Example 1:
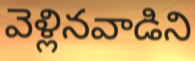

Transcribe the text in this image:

వెళ్లినవాడిని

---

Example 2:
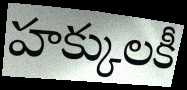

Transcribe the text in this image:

హక్కులకీ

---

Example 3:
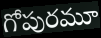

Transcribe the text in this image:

గోపురమూ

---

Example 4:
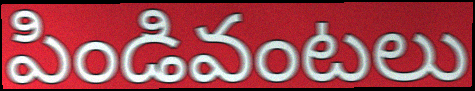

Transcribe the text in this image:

పిండివంటలు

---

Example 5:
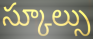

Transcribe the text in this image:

స్కూల్సు